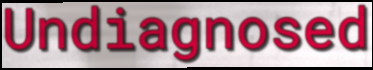
Undiagnosed